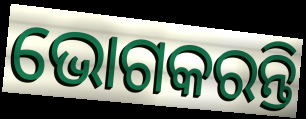
ଭୋଗକରନ୍ତି